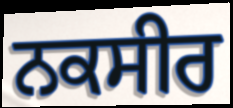
ਨਕਸੀਰ